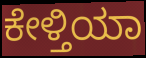
ಕೇಳ್ತಿಯಾ